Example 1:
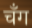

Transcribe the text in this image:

चँग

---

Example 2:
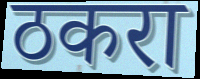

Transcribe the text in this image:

ठकरा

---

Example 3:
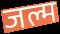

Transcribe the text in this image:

जल्म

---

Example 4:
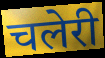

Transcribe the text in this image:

चलेरी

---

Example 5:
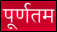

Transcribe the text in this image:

पूर्णतम